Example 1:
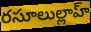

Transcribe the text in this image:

రసూలుల్లాహ్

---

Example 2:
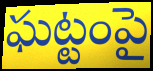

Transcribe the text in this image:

ఘట్టంపై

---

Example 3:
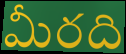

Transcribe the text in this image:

మీరది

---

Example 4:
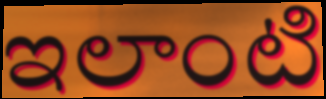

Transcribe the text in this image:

ఇలాంటి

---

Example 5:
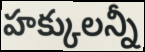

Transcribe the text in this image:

హక్కులన్నీ